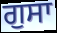
ਗੁਸਾ